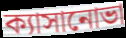
ক্যাসানোভা